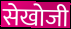
सेखोजी